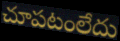
చూపటంలేదు